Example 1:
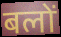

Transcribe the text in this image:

बलों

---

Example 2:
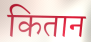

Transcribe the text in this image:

कितान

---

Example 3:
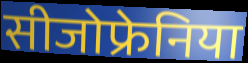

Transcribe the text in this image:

सीजोफ्रेनिया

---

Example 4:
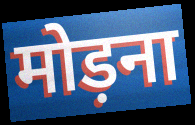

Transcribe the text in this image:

मोड़ना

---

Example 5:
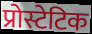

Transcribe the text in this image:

प्रोस्टेटिक